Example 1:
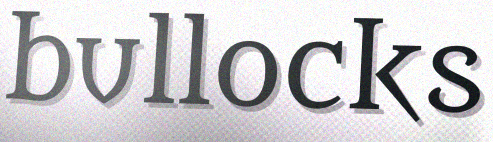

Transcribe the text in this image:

bullocks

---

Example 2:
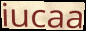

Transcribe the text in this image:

iucaa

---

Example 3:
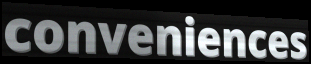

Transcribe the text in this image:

conveniences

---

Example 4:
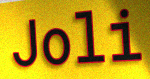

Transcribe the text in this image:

Joli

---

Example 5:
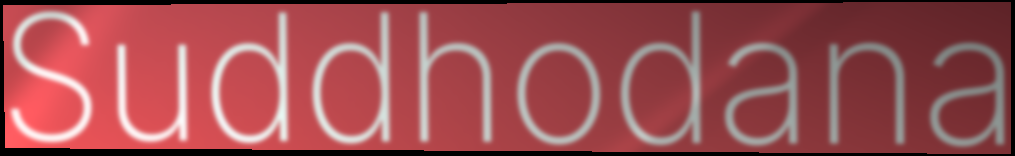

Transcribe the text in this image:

Suddhodana